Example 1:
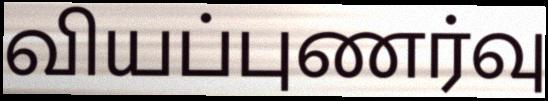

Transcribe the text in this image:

வியப்புணர்வு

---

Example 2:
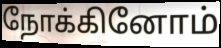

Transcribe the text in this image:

நோக்கினோம்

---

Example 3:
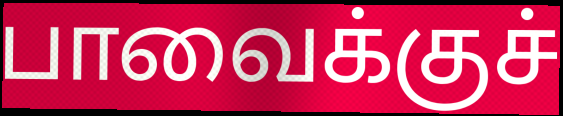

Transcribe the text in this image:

பாவைக்குச்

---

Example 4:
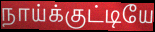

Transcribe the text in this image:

நாய்க்குட்டியே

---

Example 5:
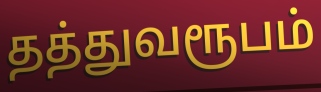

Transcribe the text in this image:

தத்துவரூபம்